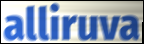
alliruva